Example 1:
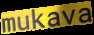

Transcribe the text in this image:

mukava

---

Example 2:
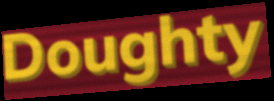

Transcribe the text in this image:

Doughty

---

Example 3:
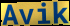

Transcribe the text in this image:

Avik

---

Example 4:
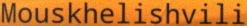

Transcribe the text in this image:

Mouskhelishvili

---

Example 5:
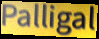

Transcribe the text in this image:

Palligal